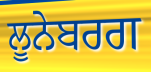
ਲੂਨੇਬਰਗ